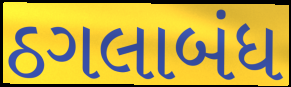
ઠગલાબંધ